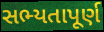
સભ્યતાપૂર્ણ